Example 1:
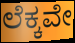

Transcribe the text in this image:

ಲೆಕ್ಕವೇ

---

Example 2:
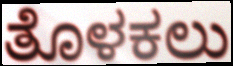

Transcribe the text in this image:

ತೊಳಕಲು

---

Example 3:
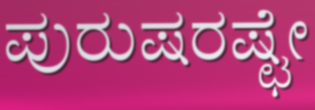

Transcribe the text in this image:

ಪುರುಷರಷ್ಟೇ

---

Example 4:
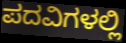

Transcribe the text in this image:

ಪದವಿಗಳಲ್ಲಿ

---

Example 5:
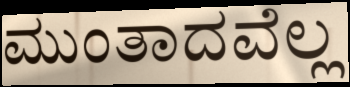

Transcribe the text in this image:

ಮುಂತಾದವೆಲ್ಲ